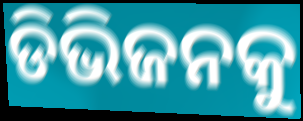
ଡିଭିଜନକୁ